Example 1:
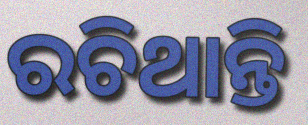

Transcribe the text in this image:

ରଚିଥାନ୍ତି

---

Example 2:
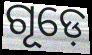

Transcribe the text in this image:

ଗୂଡ଼େ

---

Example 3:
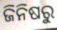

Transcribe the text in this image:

ଜିନିଷରୁ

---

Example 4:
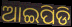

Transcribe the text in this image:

ଆଇପିଡି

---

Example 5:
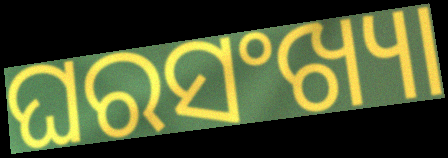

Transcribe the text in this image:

ଘରସଂଖ୍ୟା